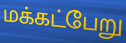
மக்கட்பேறு